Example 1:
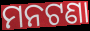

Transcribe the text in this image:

ମନଟଣା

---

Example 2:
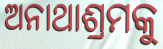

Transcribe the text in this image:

ଅନାଥାଶ୍ରମକୁ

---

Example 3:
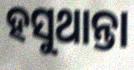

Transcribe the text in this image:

ହସୁଥାନ୍ତା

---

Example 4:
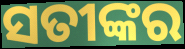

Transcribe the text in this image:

ସତୀଙ୍କର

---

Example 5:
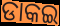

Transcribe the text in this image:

ଡାକଇ